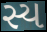
સ્ય